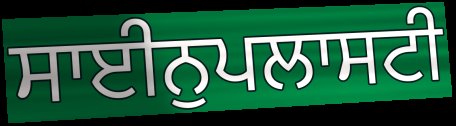
ਸਾਈਨੁਪਲਾਸਟੀ